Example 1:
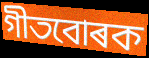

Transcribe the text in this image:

গীতবোৰক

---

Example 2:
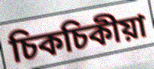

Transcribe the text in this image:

চিকচিকীয়া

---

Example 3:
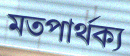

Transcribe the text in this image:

মতপাৰ্থক্য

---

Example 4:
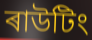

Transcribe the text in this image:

ৰাউটিং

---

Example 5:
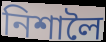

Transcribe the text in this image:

নিশালৈ